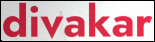
divakar